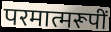
परमात्मरूपीं